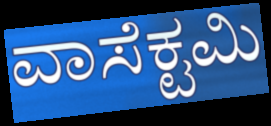
ವಾಸೆಕ್ಟಮಿ